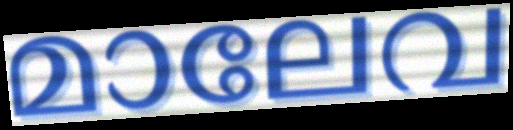
മാലേവ